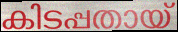
കിടപ്പതായ്